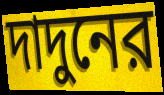
দাদুনের